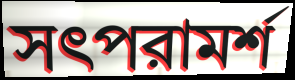
সৎপরামর্শ